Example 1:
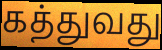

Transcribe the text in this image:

கத்துவது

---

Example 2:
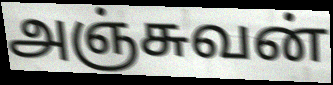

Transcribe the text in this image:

அஞ்சுவன்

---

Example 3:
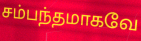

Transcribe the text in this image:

சம்பந்தமாகவே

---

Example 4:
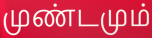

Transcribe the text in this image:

முண்டமும்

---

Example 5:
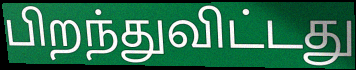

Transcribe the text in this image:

பிறந்துவிட்டது